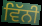
ਵਿੱਨੀ